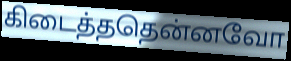
கிடைத்ததென்னவோ